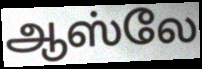
ஆஸ்லே